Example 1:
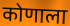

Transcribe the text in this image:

कोणाला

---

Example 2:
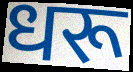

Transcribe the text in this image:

धरू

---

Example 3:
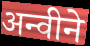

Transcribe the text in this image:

अन्वीने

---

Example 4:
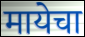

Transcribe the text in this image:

मायेचा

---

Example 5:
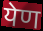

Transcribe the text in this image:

येण